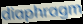
diaphragm